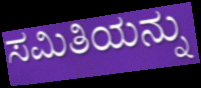
ಸಮಿತಿಯನ್ನು